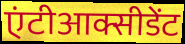
एंटीआक्सीडेंट